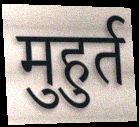
मुहुर्त